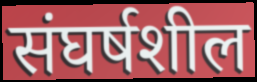
संघर्षशील